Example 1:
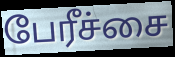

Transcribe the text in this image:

பேரீச்சை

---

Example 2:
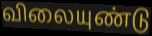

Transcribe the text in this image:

விலையுண்டு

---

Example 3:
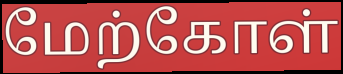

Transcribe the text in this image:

மேற்கோள்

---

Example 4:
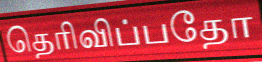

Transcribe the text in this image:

தெரிவிப்பதோ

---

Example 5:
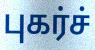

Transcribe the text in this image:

புகர்ச்